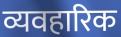
व्यवहारिक